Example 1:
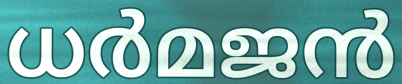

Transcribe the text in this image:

ധർമജൻ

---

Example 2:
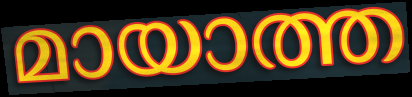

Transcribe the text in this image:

മായാത്ത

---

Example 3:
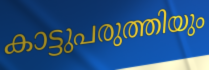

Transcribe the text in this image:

കാട്ടുപരുത്തിയും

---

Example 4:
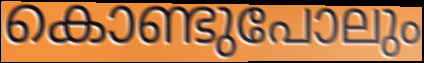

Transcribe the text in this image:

കൊണ്ടുപോലും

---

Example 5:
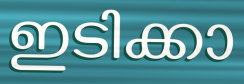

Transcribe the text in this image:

ഇടിക്കാ